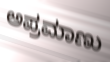
ಅಪ್ರಮಾಣು